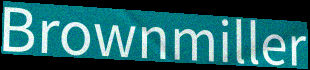
Brownmiller